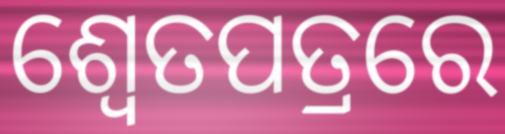
ଶ୍ୱେତପତ୍ରରେ